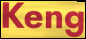
Keng